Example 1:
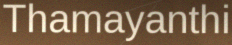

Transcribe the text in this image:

Thamayanthi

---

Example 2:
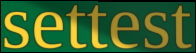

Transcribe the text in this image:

settest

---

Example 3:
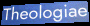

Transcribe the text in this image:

Theologiae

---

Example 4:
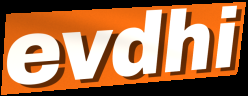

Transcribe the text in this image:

evdhi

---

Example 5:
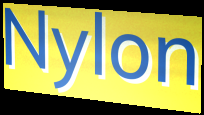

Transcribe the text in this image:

Nylon